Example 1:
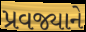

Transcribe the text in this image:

પ્રવજ્યાને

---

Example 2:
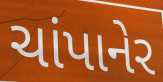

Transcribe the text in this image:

ચાંપાનેર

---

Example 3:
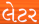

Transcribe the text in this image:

લેટર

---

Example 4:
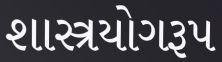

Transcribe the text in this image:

શાસ્ત્રયોગરૂપ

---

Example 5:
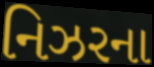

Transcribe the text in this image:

નિઝરના